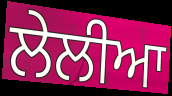
ਲੇਲੀਆ